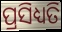
ପ୍ରସିଧ୍ୟତି